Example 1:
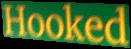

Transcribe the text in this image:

Hooked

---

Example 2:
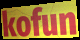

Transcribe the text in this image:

kofun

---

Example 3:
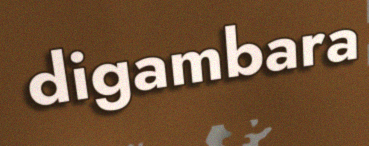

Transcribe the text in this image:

digambara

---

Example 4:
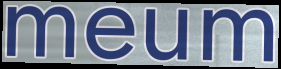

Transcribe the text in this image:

meum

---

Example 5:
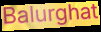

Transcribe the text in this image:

Balurghat